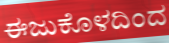
ಈಜುಕೊಳದಿಂದ